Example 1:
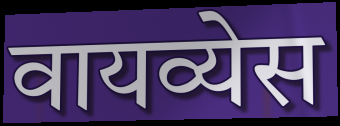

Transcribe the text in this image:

वायव्येस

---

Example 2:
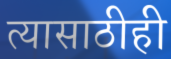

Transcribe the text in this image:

त्यासाठीही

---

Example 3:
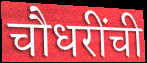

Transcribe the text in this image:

चौधरींची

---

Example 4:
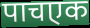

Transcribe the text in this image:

पाचएक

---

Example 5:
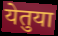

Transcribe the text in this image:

येतुया